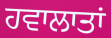
ਹਵਾਲਾਤਾਂ